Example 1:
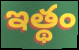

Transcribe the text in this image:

ఇత్థం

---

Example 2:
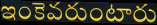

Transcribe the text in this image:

ఇంకెవరుంటారు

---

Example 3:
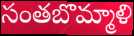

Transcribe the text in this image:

సంతబొమ్మాళి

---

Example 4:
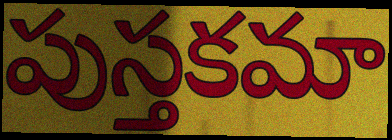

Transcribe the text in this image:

పుస్తకమా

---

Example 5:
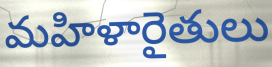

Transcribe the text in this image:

మహిళారైతులు